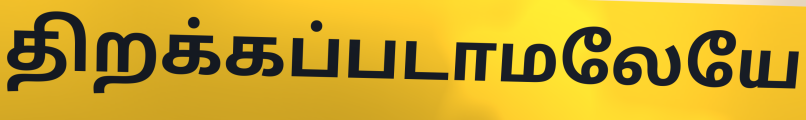
திறக்கப்படாமலேயே